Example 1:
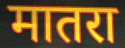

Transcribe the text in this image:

मातरा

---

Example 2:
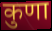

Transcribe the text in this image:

कुणा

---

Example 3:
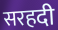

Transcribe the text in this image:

सरहदी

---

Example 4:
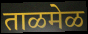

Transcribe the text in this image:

ताळमेळ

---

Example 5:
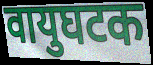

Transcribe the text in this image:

वायुघटक